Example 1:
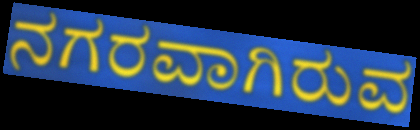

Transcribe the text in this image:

ನಗರವಾಗಿರುವ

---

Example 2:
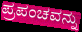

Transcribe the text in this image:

ಪ್ರಪಂಚವನ್ನು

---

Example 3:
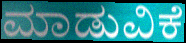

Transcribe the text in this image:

ಮಾಡುವಿಕೆ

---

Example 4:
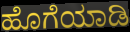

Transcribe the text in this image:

ಹೊಗೆಯಾಡಿ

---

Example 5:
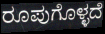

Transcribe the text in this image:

ರೂಪುಗೊಳ್ಳದೆ